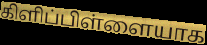
கிளிப்பிள்ளையாக